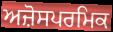
ਅਜ਼ੋਸਪਰਮਿਕ